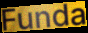
Funda